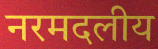
नरमदलीय